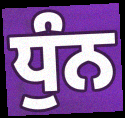
ਧੁੰਨ